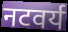
नटवर्य